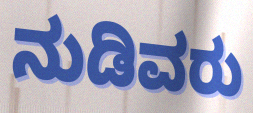
ನುಡಿವರು